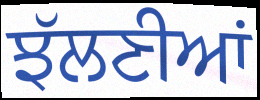
ਝੱਲਣੀਆਂ